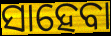
ସାହେବା